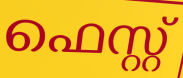
ഫെസ്റ്റ്